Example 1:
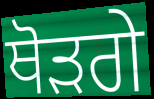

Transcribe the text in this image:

ਥੋੜਗੇ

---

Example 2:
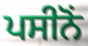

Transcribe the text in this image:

ਪਸੀਨੋਂ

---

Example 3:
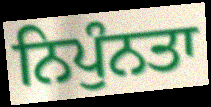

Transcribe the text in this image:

ਨਿਪੁੰਨਤਾ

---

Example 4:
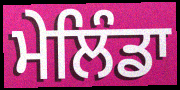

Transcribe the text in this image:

ਮੇਲਿੰਡਾ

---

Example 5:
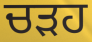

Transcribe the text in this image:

ਚੜਹ